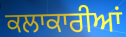
ਕਲਾਕਾਰੀਆਂ